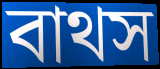
বাথস